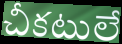
చీకటులే